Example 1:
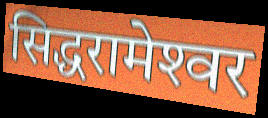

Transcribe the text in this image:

सिद्धरामेश्‍वर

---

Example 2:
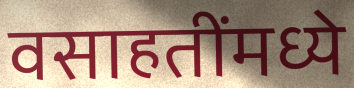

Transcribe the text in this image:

वसाहतींमध्ये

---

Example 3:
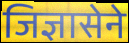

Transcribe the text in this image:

जिज्ञासेने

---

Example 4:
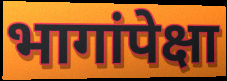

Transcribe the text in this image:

भागांपेक्षा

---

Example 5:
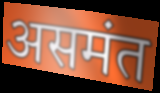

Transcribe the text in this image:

असमंत